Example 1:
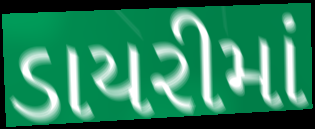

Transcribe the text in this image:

ડાયરીમાં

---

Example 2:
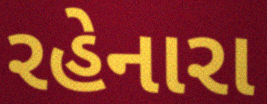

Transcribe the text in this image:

રહેનારા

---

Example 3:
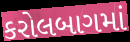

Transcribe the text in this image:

કરોલબાગમાં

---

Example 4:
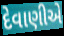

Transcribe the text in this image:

દેવાણીએ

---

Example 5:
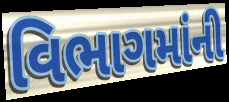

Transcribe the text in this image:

વિભાગમાંની